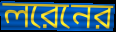
লরেনের